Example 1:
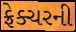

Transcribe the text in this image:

ફ્રેક્ચરની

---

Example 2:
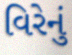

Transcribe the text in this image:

વિરેનું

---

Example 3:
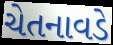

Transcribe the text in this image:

ચેતનાવડે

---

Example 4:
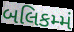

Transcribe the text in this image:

બલિકમ્મં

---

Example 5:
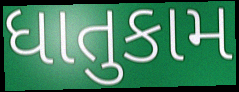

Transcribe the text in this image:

ધાતુકામ